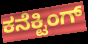
ಕನೆಕ್ಟಿಂಗ್